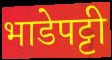
भाडेपट्टी